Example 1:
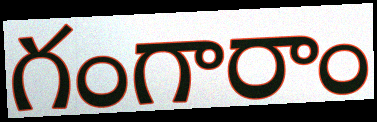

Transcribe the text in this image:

గంగారాం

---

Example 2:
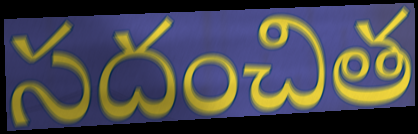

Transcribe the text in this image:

సదంచిత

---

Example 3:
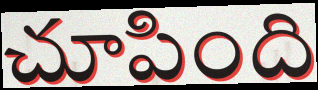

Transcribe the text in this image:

చూపింది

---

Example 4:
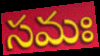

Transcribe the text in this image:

సమః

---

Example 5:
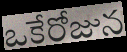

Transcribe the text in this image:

ఒకేరోజున